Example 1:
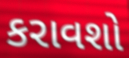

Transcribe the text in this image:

કરાવશો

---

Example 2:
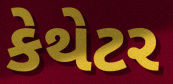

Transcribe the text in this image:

કેથેટર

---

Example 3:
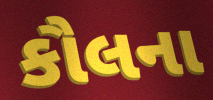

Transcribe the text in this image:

કૌલના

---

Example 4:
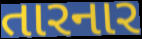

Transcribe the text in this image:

તારનાર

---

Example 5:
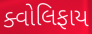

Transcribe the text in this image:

ક્વોલિફાય